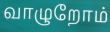
வாழுறோம்